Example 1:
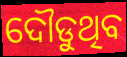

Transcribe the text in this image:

ଦୌଡୁଥିବ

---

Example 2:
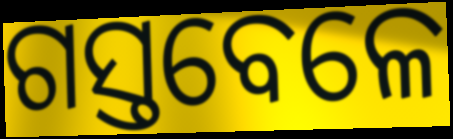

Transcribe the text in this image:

ଗସ୍ତବେଳେ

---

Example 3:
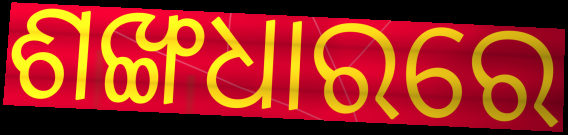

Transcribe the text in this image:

ଶଙ୍ଖଧାରରେ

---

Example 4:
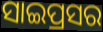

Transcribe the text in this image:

ସାଇପ୍ରସର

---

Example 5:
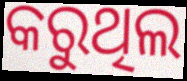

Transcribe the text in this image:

କରୁଥିଲ